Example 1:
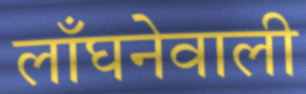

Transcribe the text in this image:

लाँघनेवाली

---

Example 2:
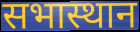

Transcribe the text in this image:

सभास्थान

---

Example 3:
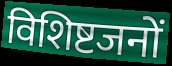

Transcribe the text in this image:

विशिष्टजनों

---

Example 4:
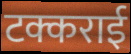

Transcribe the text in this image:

टक्कराई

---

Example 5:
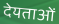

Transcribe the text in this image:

देयताओं